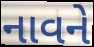
નાવને